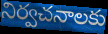
నిర్వచనాలకు